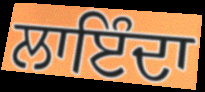
ਲਾਇੰਦਾ